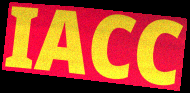
IACC